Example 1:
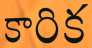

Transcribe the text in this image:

కారిక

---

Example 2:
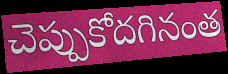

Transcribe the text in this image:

చెప్పుకోదగినంత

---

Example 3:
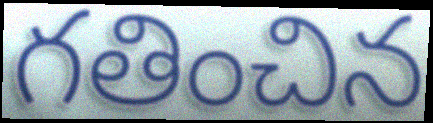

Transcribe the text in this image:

గతించిన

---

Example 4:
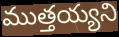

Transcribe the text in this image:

ముత్తయ్యని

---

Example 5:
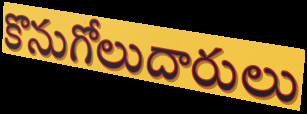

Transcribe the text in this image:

కొనుగోలుదారులు